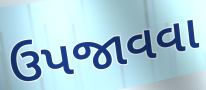
ઉપજાવવા